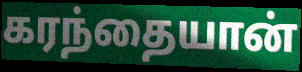
கரந்தையான்